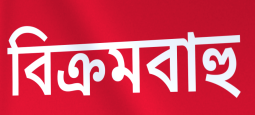
বিক্রমবাহু